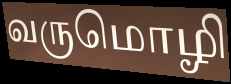
வருமொழி